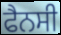
ਫੈਨਸੀ